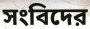
সংবিদের